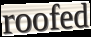
roofed